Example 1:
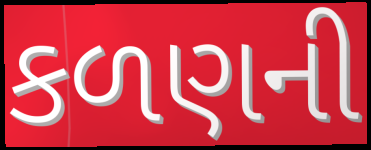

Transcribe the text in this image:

કળણની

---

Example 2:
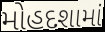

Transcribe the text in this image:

મોહદશામાં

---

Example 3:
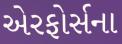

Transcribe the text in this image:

એરફોર્સના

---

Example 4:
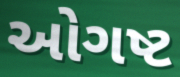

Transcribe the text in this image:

ઓગષ્ટ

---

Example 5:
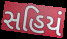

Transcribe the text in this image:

સહિયં